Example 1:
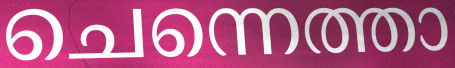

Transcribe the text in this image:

ചെന്നെത്താ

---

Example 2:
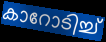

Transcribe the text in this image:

കാറോടിച്ച്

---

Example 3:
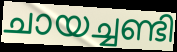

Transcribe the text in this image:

ചായച്ചണ്ടി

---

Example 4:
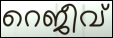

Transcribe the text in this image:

റെജീവ്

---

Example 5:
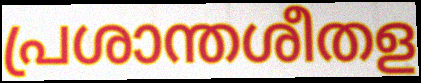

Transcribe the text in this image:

പ്രശാന്തശീതള